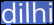
dilhi